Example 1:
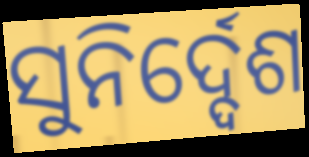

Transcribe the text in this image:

ସୁନିର୍ଦ୍ଦେଶ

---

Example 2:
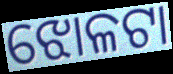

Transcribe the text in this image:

ଝୋଳଟା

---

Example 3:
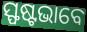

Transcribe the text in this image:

ସ୍ଫଷ୍ଟଭାବେ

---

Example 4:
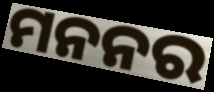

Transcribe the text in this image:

ମନନର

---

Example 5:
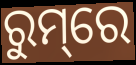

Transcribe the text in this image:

ରୁମ୍‌ରେ